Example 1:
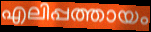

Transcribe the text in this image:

എലിപ്പത്തായം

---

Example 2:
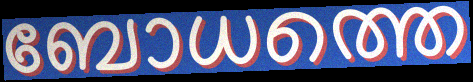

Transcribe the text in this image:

ബോധത്തെ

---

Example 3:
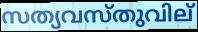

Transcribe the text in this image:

സത്യവസ്തുവില്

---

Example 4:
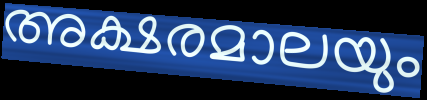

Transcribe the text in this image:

അക്ഷരമാലയും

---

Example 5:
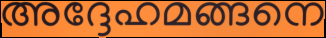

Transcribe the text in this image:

അദ്ദേഹമങ്ങനെ